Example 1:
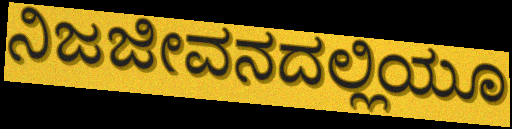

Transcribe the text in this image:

ನಿಜಜೀವನದಲ್ಲಿಯೂ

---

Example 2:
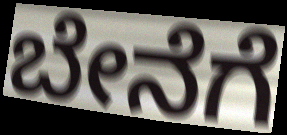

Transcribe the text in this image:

ಬೇನೆಗೆ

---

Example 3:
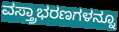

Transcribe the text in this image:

ವಸ್ತ್ರಾಭರಣಗಳನ್ನೂ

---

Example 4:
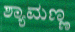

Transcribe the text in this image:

ಶ್ಯಾಮಣ್ಣ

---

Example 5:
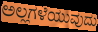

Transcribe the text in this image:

ಅಲ್ಲಗಳೆಯುವುದು